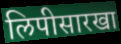
लिपीसारखा